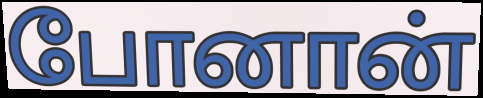
போனான்